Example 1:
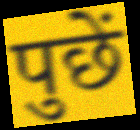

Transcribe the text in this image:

पुछें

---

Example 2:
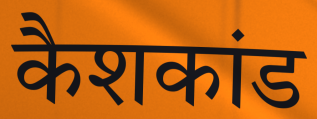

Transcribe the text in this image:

कैशकांड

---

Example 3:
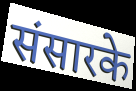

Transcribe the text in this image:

संसारके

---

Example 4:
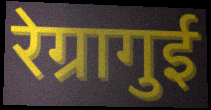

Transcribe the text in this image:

रेग्रागुई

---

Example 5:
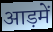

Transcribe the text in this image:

आड़में